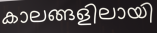
കാലങ്ങളിലായി